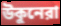
উকুনেরা